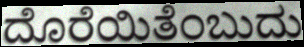
ದೊರೆಯಿತೆಂಬುದು